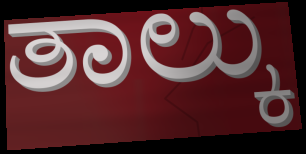
ತಾಲ್ಕು